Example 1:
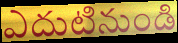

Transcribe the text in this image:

ఎదుటినుండి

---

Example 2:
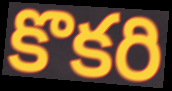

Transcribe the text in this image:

కొకరి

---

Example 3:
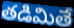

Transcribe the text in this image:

తడిమితే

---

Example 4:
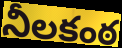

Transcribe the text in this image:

నీలకంఠ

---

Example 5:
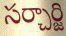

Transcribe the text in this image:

సర్చార్జి